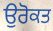
ਉਰੋਕਤ